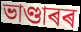
ভাণ্ডাৰৰ